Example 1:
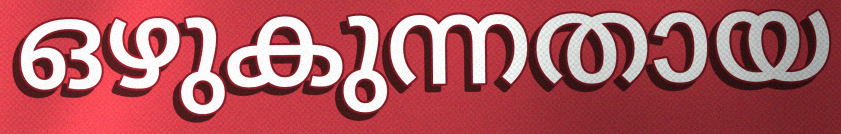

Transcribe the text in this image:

ഒഴുകുന്നതായ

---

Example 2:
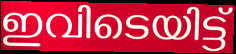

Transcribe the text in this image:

ഇവിടെയിട്ട്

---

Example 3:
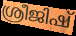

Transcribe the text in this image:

ശ്രീജിഷ്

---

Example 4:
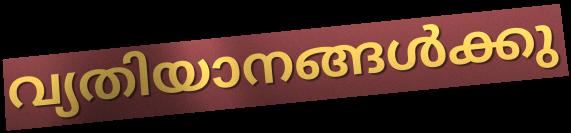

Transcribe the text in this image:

വ്യതിയാനങ്ങൾക്കു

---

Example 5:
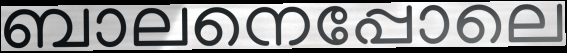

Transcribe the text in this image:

ബാലനെപ്പോലെ